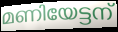
മണിയേട്ടന്